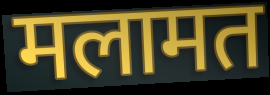
मलामत